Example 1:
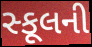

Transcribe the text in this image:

સ્કૂલની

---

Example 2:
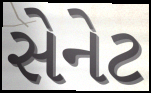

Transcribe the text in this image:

સેનેટ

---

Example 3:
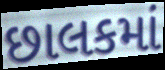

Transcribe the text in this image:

છાલકમાં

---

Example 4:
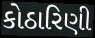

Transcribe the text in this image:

કોઠારિણી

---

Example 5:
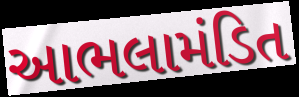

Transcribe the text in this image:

આભલામંડિત